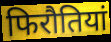
फिरौतियां